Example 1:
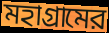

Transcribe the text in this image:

মহাগ্রামের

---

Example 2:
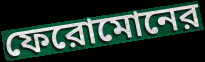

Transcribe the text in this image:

ফেরোমোনের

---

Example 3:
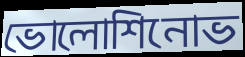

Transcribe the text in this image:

ভোলোশিনোভ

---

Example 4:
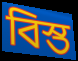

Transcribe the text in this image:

বিস্ত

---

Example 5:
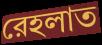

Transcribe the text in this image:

রেহলাত